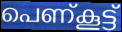
പെണ്കൂട്ട്